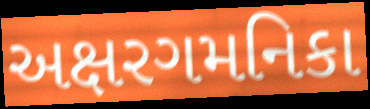
અક્ષરગમનિકા